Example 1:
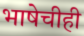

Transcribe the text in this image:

भाषेचीही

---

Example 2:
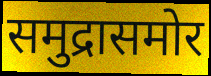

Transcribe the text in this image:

समुद्रासमोर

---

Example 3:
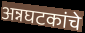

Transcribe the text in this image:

अन्नघटकांचे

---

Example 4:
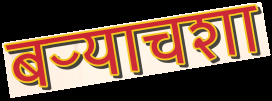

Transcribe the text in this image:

बऱ्याचशा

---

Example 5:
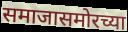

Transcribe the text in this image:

समाजासमोरच्या